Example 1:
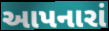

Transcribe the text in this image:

આપનારાં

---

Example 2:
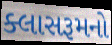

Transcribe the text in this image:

ક્લાસરૂમનો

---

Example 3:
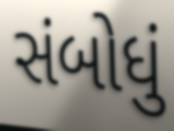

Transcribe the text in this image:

સંબોધું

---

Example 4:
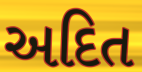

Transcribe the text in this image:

અદિત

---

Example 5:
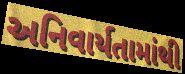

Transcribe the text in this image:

અનિવાર્યતામાંથી